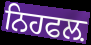
ਨਿਹਫਲ਼